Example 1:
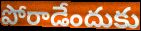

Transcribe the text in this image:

పోరాడేందుకు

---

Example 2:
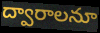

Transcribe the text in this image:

ద్వారాలనూ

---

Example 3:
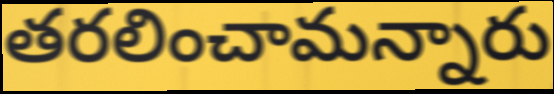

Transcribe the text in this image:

తరలించామన్నారు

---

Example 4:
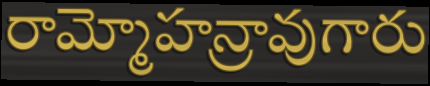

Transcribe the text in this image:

రామ్మోహన్రావుగారు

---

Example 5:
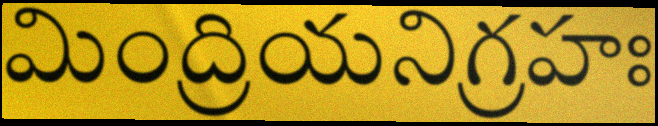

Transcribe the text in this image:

మింద్రియనిగ్రహః